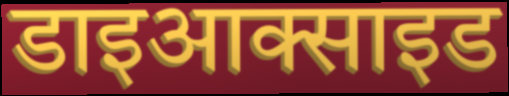
डाइआक्साइड